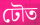
ঢৌত